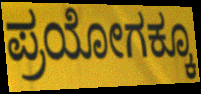
ಪ್ರಯೋಗಕ್ಕೂ